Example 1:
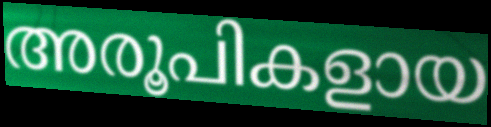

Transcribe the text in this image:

അരൂപികളായ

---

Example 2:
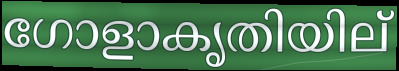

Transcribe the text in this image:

ഗോളാകൃതിയില്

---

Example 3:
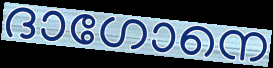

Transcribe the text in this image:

ദാഗോനെ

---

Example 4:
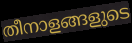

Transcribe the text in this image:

തീനാളങ്ങളുടെ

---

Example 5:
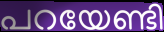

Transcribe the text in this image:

പറയേണ്ടി